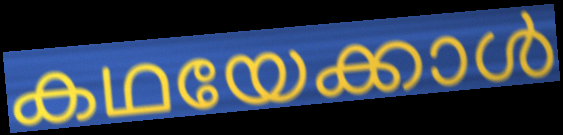
കഥയേക്കാൾ